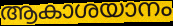
ആകാശയാനം